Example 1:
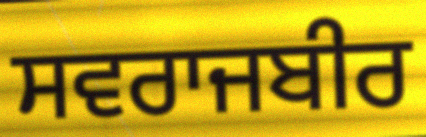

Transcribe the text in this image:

ਸਵਰਾਜਬੀਰ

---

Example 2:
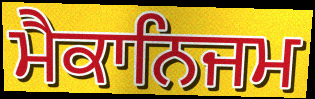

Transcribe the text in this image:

ਮੈਕਾਨਿਜਮ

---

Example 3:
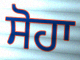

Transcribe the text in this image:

ਸੋਹਾ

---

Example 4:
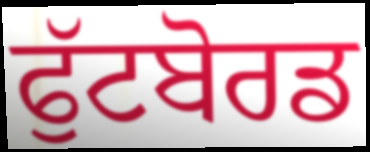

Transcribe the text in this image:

ਫੁੱਟਬੋਰਡ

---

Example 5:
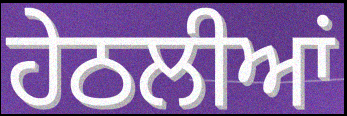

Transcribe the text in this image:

ਹੇਠਲੀਆਂ